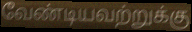
வேண்டியவற்றுக்கு